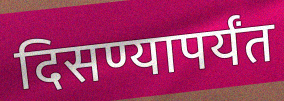
दिसण्यापर्यंत